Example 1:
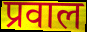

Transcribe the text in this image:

प्रवाल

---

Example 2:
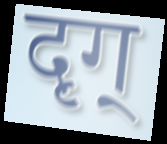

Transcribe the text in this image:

दृग्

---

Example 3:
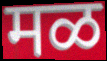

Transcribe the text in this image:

मळ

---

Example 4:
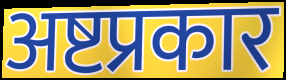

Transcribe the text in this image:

अष्टप्रकार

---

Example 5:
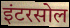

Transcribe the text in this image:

इंटरसोल